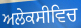
ਅਲੇਕਸੀਵਿਚ